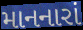
માનનારાં